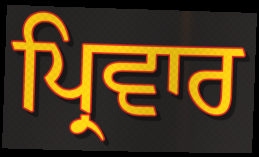
ਪ੍ਰਿਵਾਰ